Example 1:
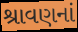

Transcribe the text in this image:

શ્રાવણનાં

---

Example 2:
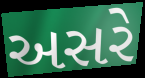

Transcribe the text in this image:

અસરે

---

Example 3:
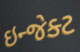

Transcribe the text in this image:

ઇન્જેક્ટ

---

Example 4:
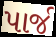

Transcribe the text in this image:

પાર્જ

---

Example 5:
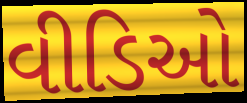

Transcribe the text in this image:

વીડિઓ